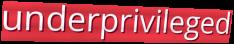
underprivileged